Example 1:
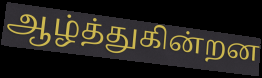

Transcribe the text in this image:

ஆழ்த்துகின்றன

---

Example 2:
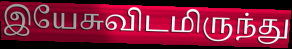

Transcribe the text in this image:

இயேசுவிடமிருந்து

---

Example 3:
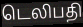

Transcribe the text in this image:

டெலிபதி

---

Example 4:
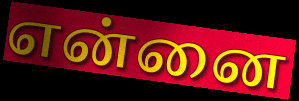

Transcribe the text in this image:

என்னை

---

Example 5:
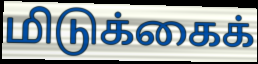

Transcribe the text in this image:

மிடுக்கைக்